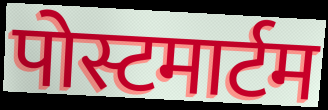
पोस्टमार्टम